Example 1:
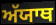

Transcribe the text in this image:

ਅੱਯਾਥ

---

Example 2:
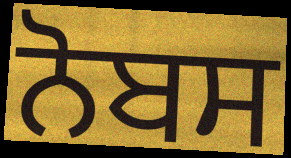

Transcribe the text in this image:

ਨੋਬਸ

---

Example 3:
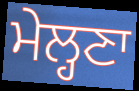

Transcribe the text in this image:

ਮੇਲ੍ਹਣਾ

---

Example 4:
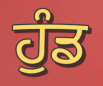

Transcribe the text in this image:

ਹੁੰਡ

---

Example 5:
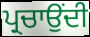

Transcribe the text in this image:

ਪ੍ਰਚਾਉਂਦੀ